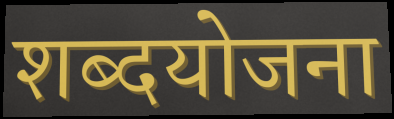
शब्दयोजना